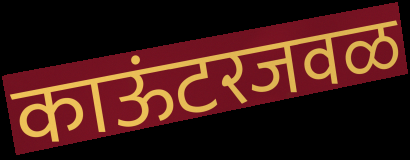
काऊंटरजवळ